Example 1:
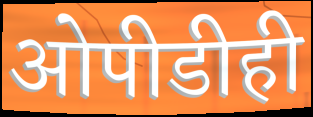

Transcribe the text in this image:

ओपीडीही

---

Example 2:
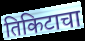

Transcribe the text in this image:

तिकिटाचा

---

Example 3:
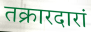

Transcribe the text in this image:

तक्रारदारां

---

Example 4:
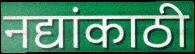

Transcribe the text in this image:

नद्यांकाठी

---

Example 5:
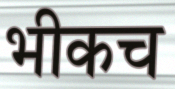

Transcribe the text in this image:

भीकच